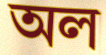
অল